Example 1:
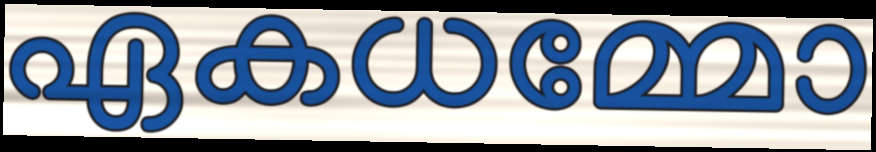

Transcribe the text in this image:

ഏകധമ്മോ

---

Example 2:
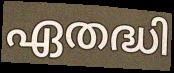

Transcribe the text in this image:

ഏതദ്ധി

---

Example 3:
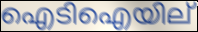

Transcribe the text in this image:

ഐടിഐയില്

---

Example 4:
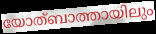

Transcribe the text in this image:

യോത്ബാത്തായിലും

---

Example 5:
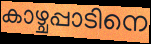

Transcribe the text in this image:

കാഴ്ചപ്പാടിനെ